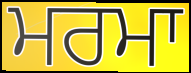
ਮਰਮਾ